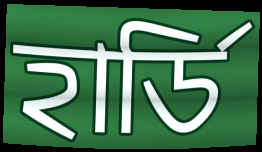
হাৰ্ডি